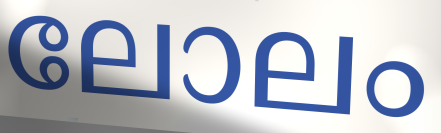
ലോലം